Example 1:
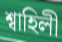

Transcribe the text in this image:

শ্বাহিলী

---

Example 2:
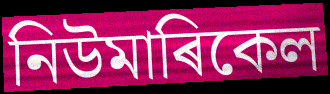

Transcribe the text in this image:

নিউমাৰিকেল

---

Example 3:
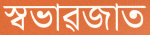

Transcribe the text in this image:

স্বভাৱজাত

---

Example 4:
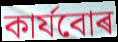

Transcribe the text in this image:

কাৰ্যবোৰ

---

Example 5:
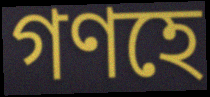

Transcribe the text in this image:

গণহে